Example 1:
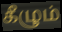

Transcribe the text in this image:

கீழும்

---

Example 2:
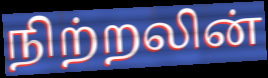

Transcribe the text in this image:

நிற்றலின்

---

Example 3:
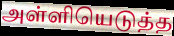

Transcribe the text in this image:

அள்ளியெடுத்த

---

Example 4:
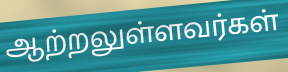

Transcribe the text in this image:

ஆற்றலுள்ளவர்கள்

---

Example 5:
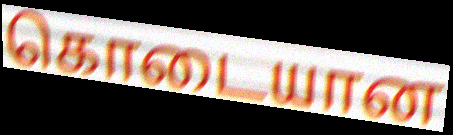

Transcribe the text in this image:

கொடையான